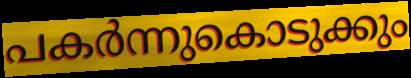
പകർന്നുകൊടുക്കും